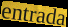
entrada